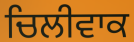
ਚਿਲੀਵਾਕ